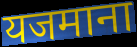
यजमाना